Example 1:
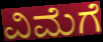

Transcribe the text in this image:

ವಿಮೆಗೆ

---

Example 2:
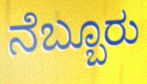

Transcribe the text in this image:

ನೆಬ್ಬೂರು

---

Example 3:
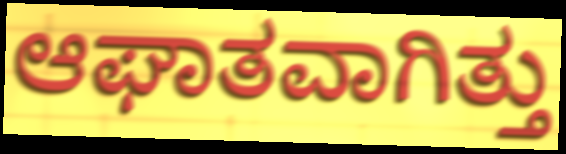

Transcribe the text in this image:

ಆಘಾತವಾಗಿತ್ತು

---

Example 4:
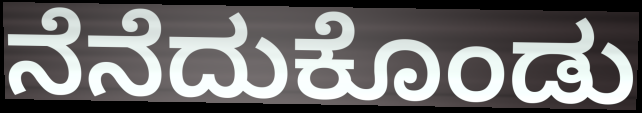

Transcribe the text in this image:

ನೆನೆದುಕೊಂಡು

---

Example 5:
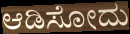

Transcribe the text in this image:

ಆಡಿಸೋದು